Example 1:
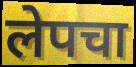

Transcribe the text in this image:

लेपचा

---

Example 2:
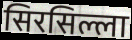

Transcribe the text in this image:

सिरसिल्ला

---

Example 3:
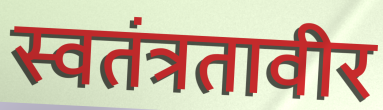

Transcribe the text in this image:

स्वतंत्रतावीर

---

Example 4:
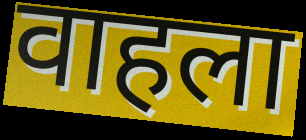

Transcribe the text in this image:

वाहला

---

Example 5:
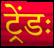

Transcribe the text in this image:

ट्रेंडः